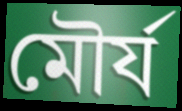
মৌর্য